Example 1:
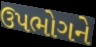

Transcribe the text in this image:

ઉપભોગને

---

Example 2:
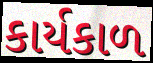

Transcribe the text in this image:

કાર્યકાળ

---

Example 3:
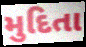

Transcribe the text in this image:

મુદિતા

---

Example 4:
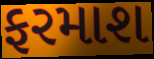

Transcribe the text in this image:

ફરમાશ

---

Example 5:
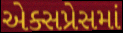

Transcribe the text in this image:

એક્સપ્રેસમાં